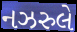
નઝરુલે